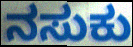
ನಸುಕು